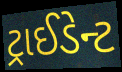
ટ્રાઈડેન્ટ